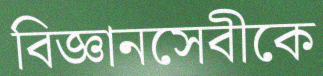
বিজ্ঞানসেবীকে